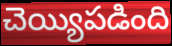
చెయ్యిపడింది